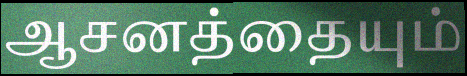
ஆசனத்தையும்